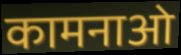
कामनाओ